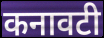
कनावटी